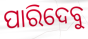
ପାରିଦେବୁ